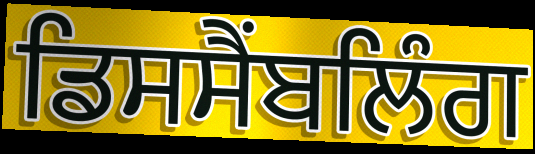
ਡਿਸਸੈਂਬਲਿੰਗ